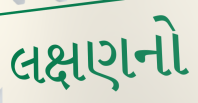
લક્ષણનો